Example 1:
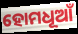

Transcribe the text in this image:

ହୋମଧୂଆଁ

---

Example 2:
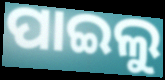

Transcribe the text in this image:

ପାଇଲୁ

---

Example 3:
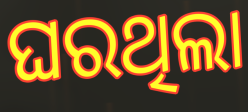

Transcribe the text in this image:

ଘରଥିଲା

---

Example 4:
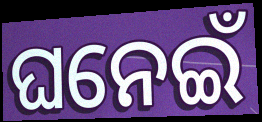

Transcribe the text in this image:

ଘନେଇଁ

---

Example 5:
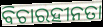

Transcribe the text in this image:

ବିଚାରହୀନତା